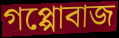
গপ্পোবাজ